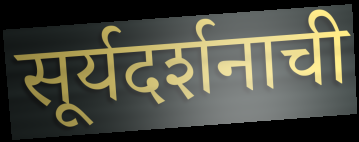
सूर्यदर्शनाची